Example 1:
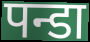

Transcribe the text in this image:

पन्डा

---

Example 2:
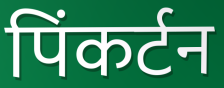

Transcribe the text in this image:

पिंकर्टन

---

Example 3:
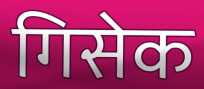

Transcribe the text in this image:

गिसेक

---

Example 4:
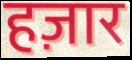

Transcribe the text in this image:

हज़ार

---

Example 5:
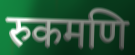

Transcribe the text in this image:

रुकमणि